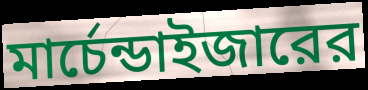
মার্চেন্ডাইজারের